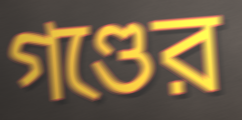
গণ্ডের